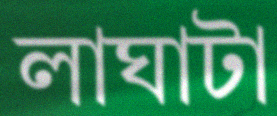
লাঘাটা